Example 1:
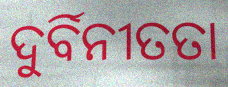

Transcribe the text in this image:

ଦୁର୍ବିନୀତତା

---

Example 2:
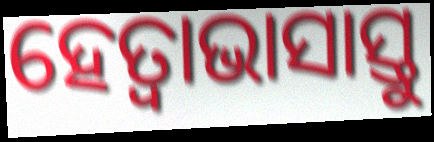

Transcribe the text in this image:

ହେତ୍ଵାଭାସାସ୍ତୁ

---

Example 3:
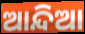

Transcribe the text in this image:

ଆନ୍ଦିଆ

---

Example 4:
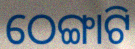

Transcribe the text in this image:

ଠେଙ୍ଗାଟି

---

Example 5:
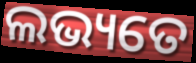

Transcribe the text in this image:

ଲଭ୍ୟତେ